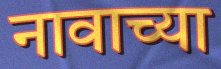
नावाच्या